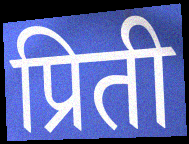
प्रिती